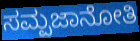
ಸಮ್ಪಜಾನೋತಿ